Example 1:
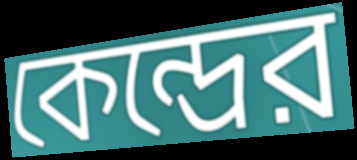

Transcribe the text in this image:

কেন্দ্রের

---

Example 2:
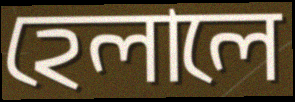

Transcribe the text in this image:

হেলালে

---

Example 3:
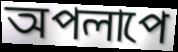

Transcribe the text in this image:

অপলাপে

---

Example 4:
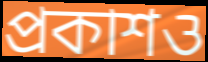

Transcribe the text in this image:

প্রকাশও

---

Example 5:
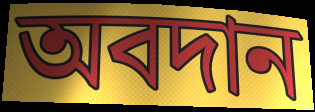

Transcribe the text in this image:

অবদান